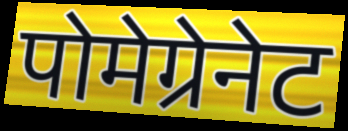
पोमेग्रेनेट